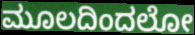
ಮೂಲದಿಂದಲೋ